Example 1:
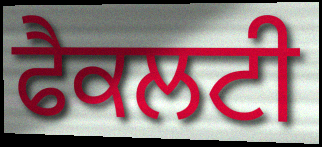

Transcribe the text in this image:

ਫੈਕਲਟੀ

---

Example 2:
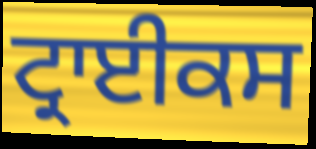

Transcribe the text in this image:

ਟ੍ਰਾਈਕਸ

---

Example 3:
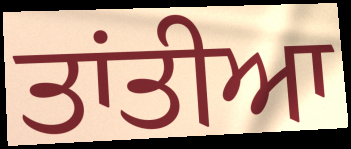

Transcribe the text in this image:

ਤਾਂਤੀਆ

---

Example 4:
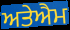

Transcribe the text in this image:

ਅਤੇਐਮ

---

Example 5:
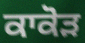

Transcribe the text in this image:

ਕਾਕੋੜ